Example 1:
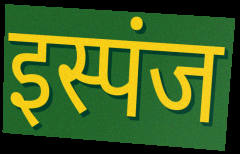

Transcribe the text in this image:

इस्पंज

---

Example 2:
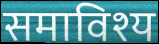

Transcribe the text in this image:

समाविश्य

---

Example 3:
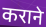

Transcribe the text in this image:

कराने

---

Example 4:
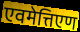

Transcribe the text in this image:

एवमेत्तिएण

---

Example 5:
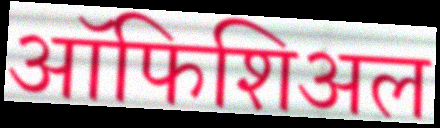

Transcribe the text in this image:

ऑफिशिअल